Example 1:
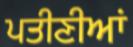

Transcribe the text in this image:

ਪਤੀਣੀਆਂ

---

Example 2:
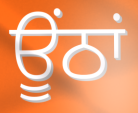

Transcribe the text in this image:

ਊਂਠਾਂ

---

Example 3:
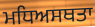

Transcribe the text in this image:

ਮਧਿਅਸਥਤਾ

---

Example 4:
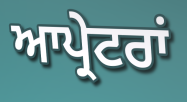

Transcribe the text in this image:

ਆਪ੍ਰੇਟਰਾਂ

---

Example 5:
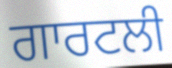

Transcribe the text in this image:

ਗਾਰਟਲੀ